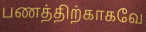
பணத்திற்காகவே